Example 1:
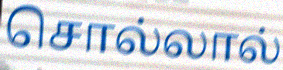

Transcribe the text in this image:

சொல்லால்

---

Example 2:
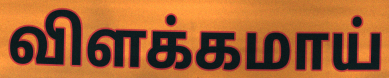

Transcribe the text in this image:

விளக்கமாய்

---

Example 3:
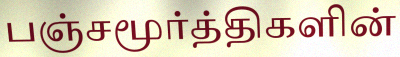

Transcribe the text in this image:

பஞ்சமூர்த்திகளின்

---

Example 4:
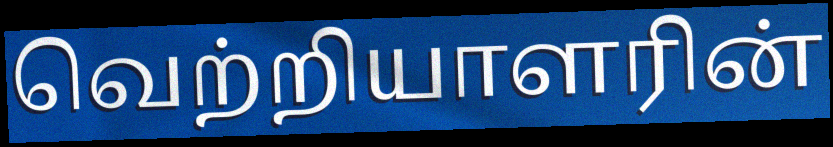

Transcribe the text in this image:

வெற்றியாளரின்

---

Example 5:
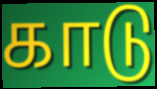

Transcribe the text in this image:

காடு